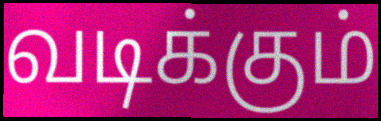
வடிக்கும்